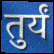
तुर्यं